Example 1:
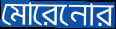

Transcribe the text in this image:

মোরেনোর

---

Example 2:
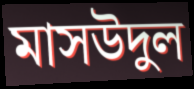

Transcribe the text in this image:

মাসউদুল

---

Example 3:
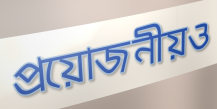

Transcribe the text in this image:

প্রয়োজনীয়ও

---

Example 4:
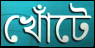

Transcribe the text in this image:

খোঁটে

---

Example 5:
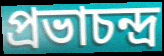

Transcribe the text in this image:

প্রভাচন্দ্র